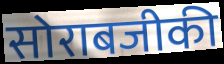
सोराबजीकी